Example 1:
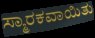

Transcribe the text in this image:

ಸ್ಮಾರಕವಾಯಿತು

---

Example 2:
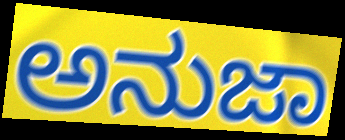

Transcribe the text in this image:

ಅನುಜಾ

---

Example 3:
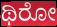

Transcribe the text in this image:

ಥಿರೋ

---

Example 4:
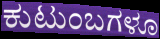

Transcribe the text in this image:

ಕುಟುಂಬಗಳೂ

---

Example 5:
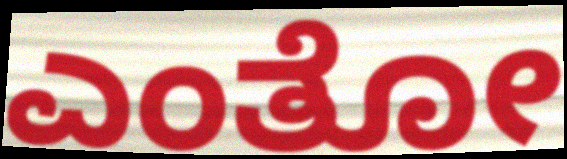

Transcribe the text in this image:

ಎಂತೋ